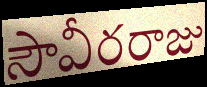
సౌవీరరాజు